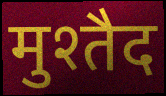
मुश्तैद